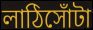
লাঠিসোঁটা